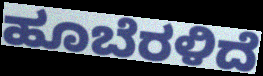
ಹೂಬೆರಳಿದೆ